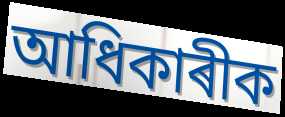
আধিকাৰীক